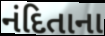
નંદિતાના